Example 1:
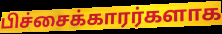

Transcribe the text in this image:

பிச்சைக்காரர்களாக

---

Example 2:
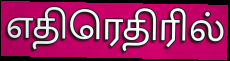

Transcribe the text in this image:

எதிரெதிரில்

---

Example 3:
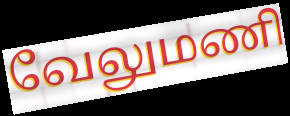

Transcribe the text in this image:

வேலுமணி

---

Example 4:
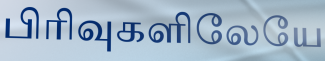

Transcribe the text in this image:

பிரிவுகளிலேயே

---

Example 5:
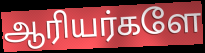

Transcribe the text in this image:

ஆரியர்களே